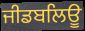
ਜੀਡਬਲਿਊ